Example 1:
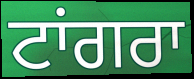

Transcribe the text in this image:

ਟਾਂਗਰਾ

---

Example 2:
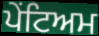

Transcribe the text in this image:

ਪੇਂਟਿਅਮ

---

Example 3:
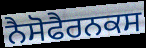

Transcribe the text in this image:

ਨੈਸੋਫੈਰਨਕਸ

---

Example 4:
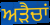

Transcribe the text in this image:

ਅੜੈਚਾਂ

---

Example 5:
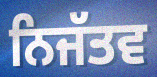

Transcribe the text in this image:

ਨਿਜੱਤਵ